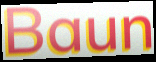
Baun